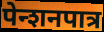
पेन्शनपात्र